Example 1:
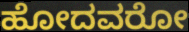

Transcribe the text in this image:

ಹೋದವರೋ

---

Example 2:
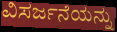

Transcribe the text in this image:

ವಿಸರ್ಜನೆಯನ್ನು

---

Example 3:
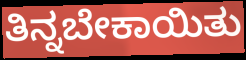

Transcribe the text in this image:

ತಿನ್ನಬೇಕಾಯಿತು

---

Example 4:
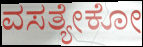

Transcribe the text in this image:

ವಸತ್ಯೇಕೋ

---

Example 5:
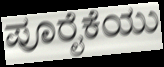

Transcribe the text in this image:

ಪೂರೈಕೆಯು